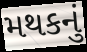
મથકનું